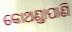
କୋଥଣ୍ଡାପାଣି